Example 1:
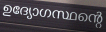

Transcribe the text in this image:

ഉദ്യോഗസ്ഥന്റെ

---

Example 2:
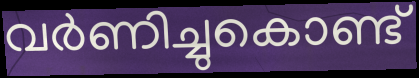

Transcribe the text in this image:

വർണിച്ചുകൊണ്ട്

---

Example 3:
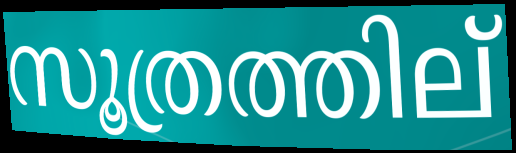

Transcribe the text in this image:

സൂത്രത്തില്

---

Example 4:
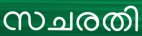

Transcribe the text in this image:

സചരതി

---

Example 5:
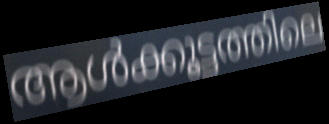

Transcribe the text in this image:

ആൾക്കൂട്ടത്തിലെ